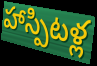
హాస్పిటళ్ల